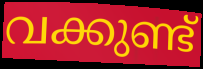
വക്കുണ്ട്